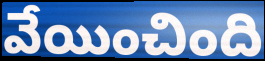
వేయించింది